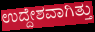
ಉದ್ದೇಶವಾಗಿತ್ತು